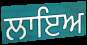
ਲਾਇਅ